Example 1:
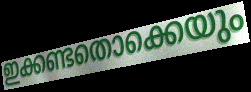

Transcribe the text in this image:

ഇക്കണ്ടതൊക്കെയും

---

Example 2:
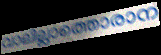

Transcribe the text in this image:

വാലില്ലാത്തൊരാന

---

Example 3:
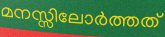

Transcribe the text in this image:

മനസ്സിലോർത്തത്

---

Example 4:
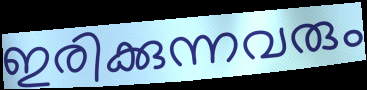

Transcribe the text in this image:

ഇരിക്കുന്നവരും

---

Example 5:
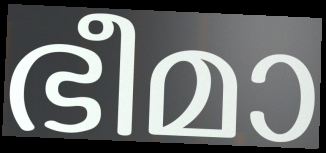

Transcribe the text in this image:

ഭീമാ